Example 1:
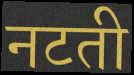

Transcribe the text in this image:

नटती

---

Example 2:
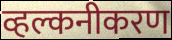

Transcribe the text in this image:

व्हल्कनीकरण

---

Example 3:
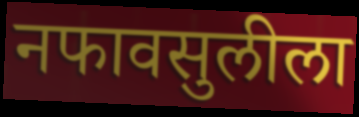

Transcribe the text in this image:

नफावसुलीला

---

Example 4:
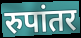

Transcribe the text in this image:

रुपांतर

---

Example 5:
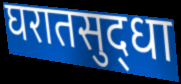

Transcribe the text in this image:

घरातसुद्धा